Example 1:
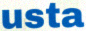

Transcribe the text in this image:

usta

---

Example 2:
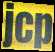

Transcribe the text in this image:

jcp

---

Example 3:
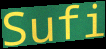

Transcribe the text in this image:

Sufi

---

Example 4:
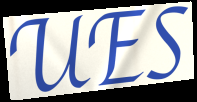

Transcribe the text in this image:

UES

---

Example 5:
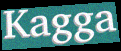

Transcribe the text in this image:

Kagga